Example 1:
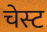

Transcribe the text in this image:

चेस्‍ट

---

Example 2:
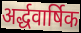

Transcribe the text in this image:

अर्द्धवार्षिक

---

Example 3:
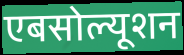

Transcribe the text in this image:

एबसोल्यूशन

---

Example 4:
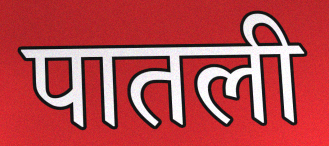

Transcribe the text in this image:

पातली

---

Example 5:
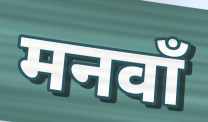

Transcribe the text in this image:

मनवाँ